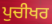
ਪੁਚੀਖਰ